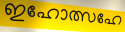
ഇഹോത്സഹേ